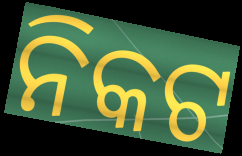
ନିକଟ